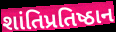
શાંતિપ્રતિષ્ઠાન